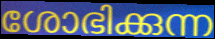
ശോഭിക്കുന്ന